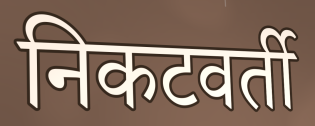
निकटवर्ती